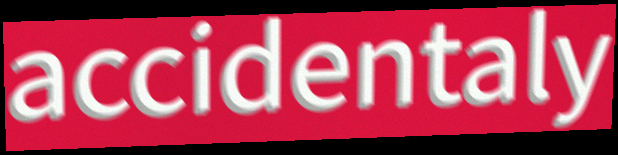
accidentaly